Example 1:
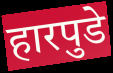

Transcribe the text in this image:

हारपुडे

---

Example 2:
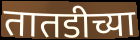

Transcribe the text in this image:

तातडीच्या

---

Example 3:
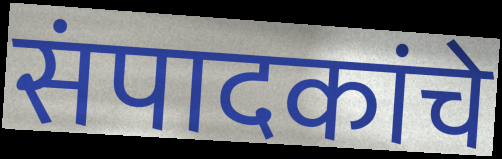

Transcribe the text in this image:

संपादकांचे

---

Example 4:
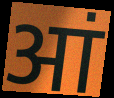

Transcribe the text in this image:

आं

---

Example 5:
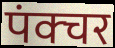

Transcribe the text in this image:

पंक्‍चर